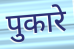
पुकारे